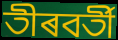
তীৰবৰ্তী